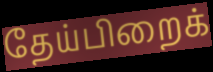
தேய்பிறைக்